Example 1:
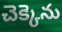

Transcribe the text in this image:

చెక్కెను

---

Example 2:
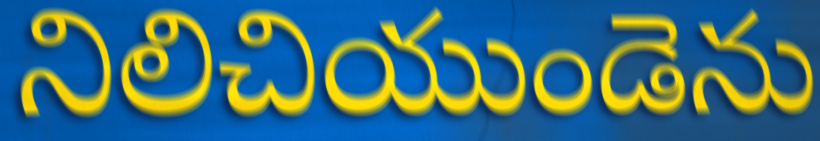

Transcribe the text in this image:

నిలిచియుండెను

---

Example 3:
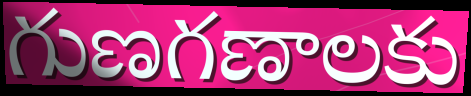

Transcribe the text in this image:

గుణగణాలకు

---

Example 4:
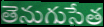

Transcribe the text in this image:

తెనుగుసేత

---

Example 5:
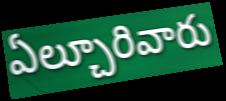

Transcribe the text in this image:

ఏల్చూరివారు